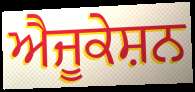
ਐਜੂਕੇਸ਼ਨ